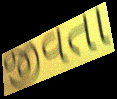
જીવતા